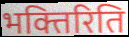
भक्तिरिति